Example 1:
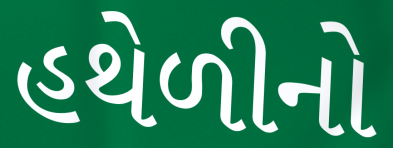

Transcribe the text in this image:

હથેળીનો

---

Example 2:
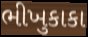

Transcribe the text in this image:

ભીખુકાકા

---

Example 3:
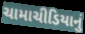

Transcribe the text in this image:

ચામાચીડિયાનું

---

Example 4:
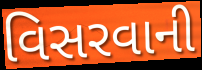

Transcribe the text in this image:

વિસરવાની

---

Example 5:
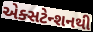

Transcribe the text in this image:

એક્સટેન્શનથી